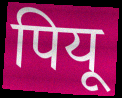
पियू